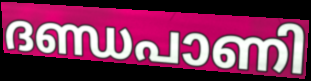
ദണ്ഡപാണി